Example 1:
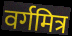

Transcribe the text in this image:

वर्गमित्र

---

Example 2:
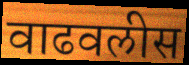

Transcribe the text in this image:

वाढवलीस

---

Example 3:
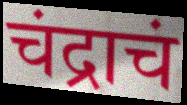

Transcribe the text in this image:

चंद्राचं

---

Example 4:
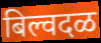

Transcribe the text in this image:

बिल्वदळ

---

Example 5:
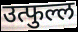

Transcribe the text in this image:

उत्फुल्ल